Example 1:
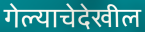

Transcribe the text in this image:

गेल्याचेदेखील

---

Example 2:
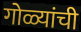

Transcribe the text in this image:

गोळ्यांची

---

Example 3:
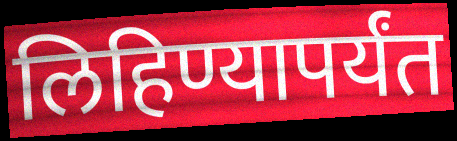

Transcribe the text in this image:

लिहिण्यापर्यंत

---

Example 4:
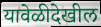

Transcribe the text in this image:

यावेळीदेखील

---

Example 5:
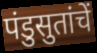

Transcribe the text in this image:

पंडुसुतांचें